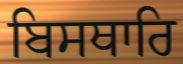
ਬਿਸਥਾਰਿ